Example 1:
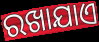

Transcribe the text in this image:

ରଖାଯାଏ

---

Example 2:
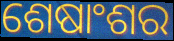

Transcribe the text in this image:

ଶେଷାଂଶର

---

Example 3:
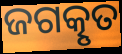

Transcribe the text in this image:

ଜଗତ୍କୃତ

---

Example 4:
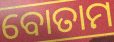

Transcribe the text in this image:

ବୋତାମ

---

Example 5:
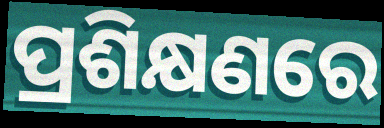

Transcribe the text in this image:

ପ୍ରଶିକ୍ଷଣରେ